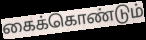
கைக்கொண்டும்